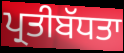
ਪ੍ਰਤੀਬੱਧਤਾ